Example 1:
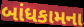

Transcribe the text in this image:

બાંધકામના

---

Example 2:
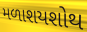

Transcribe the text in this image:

મળાશયશોથ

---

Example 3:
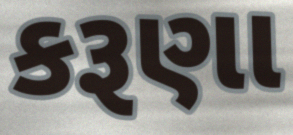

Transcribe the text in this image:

કરૂણા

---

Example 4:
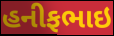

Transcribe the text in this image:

હનીફભાઇ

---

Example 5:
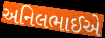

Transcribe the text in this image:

અનિલભાઈએ